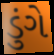
ડુંગે